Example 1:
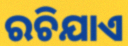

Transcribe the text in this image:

ରଚିଯାଏ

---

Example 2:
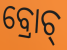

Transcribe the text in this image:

ବ୍ରୋଚ୍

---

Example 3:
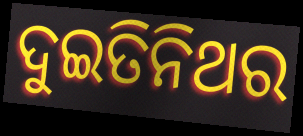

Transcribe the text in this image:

ଦୁଇତିନିଥର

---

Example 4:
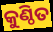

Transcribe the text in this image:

କୁଣ୍ଠିତ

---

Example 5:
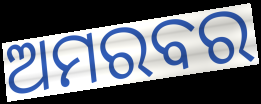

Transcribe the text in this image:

ଅମରବର